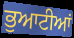
ਭੁਆਟੀਆਂ